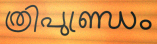
ത്രിപുണ്ഡ്രം